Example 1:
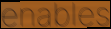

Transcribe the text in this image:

enables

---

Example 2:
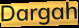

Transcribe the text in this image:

Dargah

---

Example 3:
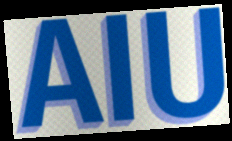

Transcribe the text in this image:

AIU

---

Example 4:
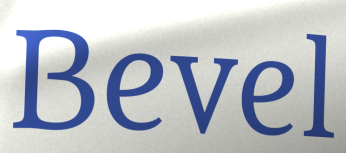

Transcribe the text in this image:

Bevel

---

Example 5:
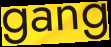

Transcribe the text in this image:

gang